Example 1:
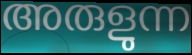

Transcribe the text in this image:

അരുളുന്ന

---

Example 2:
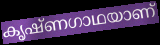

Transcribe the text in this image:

കൃഷ്ണഗാഥയാണ്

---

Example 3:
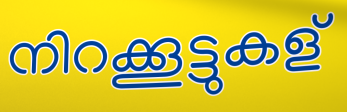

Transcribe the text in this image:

നിറക്കൂട്ടുകള്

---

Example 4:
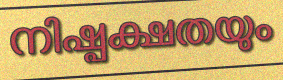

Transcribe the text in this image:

നിഷ്പക്ഷതയും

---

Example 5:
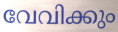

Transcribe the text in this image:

വേവിക്കും